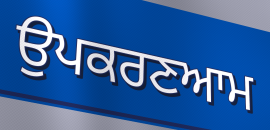
ਉਪਕਰਣਆਮ